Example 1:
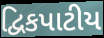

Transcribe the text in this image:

દ્વિકપાટીય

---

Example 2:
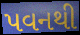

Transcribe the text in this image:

પવનથી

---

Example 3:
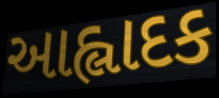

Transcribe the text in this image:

આહ્લાદક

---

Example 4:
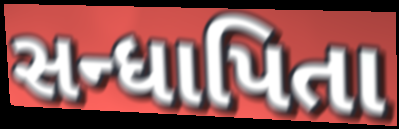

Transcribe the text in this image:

સન્ધાપિતા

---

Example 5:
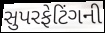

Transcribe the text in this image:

સુપરફેટિંગની